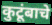
कुटूंबाचे